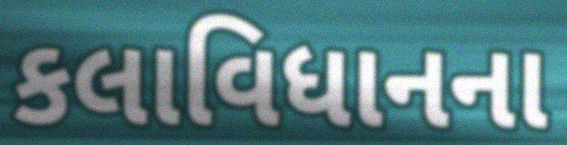
કલાવિધાનના